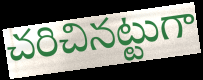
చరిచినట్టుగా